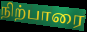
நிற்பாரை